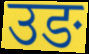
उङ